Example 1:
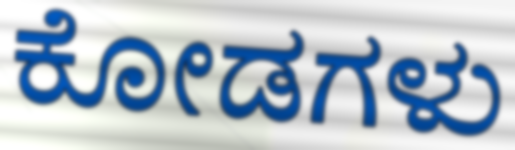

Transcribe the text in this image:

ಕೋಡಗಳು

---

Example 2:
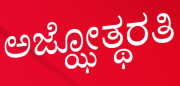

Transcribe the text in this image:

ಅಜ್ಝೋತ್ಥರತಿ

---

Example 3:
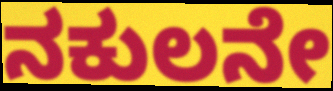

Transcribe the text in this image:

ನಕುಲನೇ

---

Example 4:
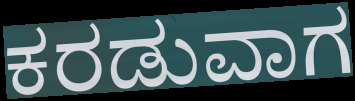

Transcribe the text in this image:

ಕರಡುವಾಗ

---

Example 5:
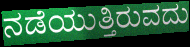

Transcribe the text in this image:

ನಡೆಯುತ್ತಿರುವದು